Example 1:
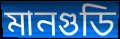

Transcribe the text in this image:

মানগুডি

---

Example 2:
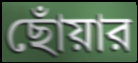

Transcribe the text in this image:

ছোঁয়ার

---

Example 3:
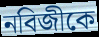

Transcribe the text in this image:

নবিজীকে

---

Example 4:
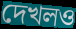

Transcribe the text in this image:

দেখলও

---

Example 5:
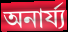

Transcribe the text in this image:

অনার্য্য